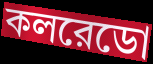
কলরেডো